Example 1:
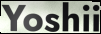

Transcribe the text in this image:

Yoshii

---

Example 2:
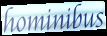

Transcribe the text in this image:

hominibus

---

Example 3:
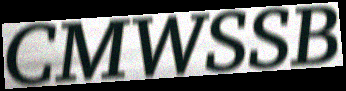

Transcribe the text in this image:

CMWSSB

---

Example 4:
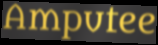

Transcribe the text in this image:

Amputee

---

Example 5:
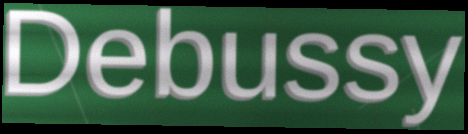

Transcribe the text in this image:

Debussy